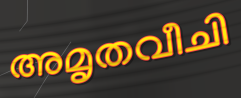
അമൃതവീചി